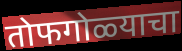
तोफगोळ्याचा